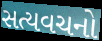
સત્યવચનો